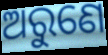
ଅରୁଣେ